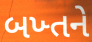
બખ્તને